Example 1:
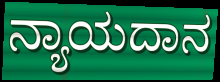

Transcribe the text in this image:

ನ್ಯಾಯದಾನ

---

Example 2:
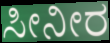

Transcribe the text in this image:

ಸೀನೀರ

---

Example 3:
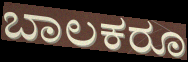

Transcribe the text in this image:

ಬಾಲಕರೂ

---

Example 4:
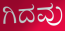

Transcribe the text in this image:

ಗಿದವು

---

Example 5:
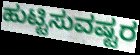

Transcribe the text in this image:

ಹುಟ್ಟಿಸುವಷ್ಟರ